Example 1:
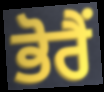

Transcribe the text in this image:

ਭੋਰੈਂ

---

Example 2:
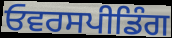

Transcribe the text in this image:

ਓਵਰਸਪੀਡਿੰਗ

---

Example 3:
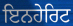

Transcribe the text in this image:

ਇਨਹੇਰਿਟ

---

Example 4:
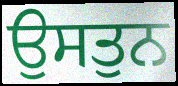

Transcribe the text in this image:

ਉਸਤੁਨ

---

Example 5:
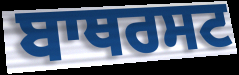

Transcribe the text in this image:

ਬਾਥਰਸਟ